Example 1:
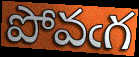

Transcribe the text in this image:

పోవఁగ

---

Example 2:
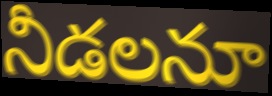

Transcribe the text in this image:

నీడలనూ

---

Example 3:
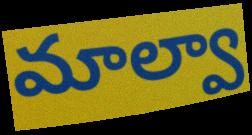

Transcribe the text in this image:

మాల్వా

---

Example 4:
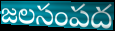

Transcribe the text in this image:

జలసంపద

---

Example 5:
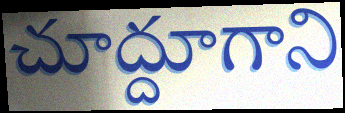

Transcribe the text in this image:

చూద్దూగాని